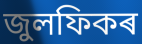
জুলফিকৰ